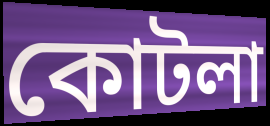
কোটলা